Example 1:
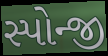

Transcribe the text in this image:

સ્પોન્જી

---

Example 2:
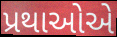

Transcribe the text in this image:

પ્રથાઓએ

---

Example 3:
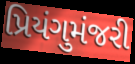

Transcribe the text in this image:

પ્રિયંગુમંજરી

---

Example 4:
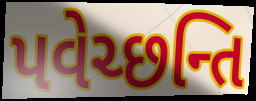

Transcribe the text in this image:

પવેચ્છન્તિ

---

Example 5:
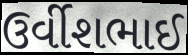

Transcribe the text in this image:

ઉર્વીશભાઈ